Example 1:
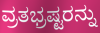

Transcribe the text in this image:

ವ್ರತಭ್ರಷ್ಟರನ್ನು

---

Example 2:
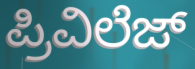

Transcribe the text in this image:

ಪ್ರಿವಿಲೆಜ್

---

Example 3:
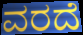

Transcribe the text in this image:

ವರದೆ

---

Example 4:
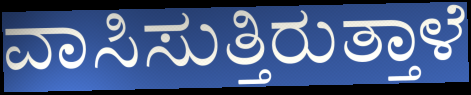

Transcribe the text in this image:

ವಾಸಿಸುತ್ತಿರುತ್ತಾಳೆ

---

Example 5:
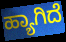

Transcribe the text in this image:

ಹ್ಯಾಗಿದೆ